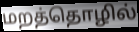
மறத்தொழில்